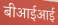
बीआईआई